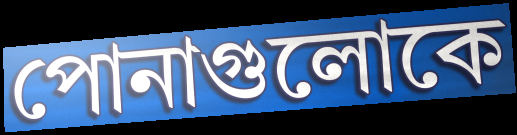
পোনাগুলোকে